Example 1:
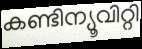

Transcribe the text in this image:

കണ്ടിന്യൂവിറ്റി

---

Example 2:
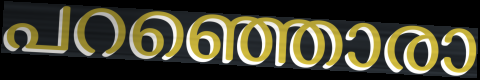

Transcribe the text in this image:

പറഞ്ഞൊരാ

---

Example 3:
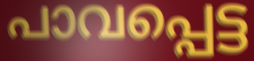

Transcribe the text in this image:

പാവപ്പെട്ട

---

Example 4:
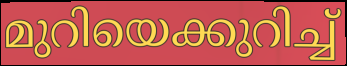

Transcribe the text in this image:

മുറിയെക്കുറിച്ച്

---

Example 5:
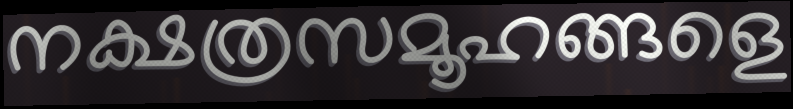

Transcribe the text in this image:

നക്ഷത്രസമൂഹങ്ങളെ